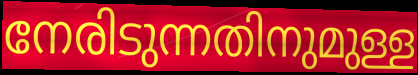
നേരിടുന്നതിനുമുള്ള